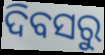
ଦିବସରୁ